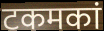
टकमकां